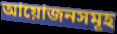
আয়োজনসমূহ